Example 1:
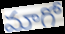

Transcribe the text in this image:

మాగో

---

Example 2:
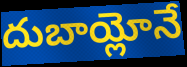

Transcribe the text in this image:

దుబాయ్లోనే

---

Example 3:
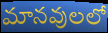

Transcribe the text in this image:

మానవులలో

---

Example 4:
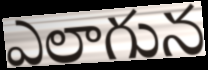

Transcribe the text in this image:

ఎలాగున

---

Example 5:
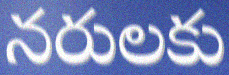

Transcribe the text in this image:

నరులకు